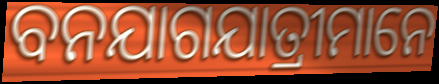
ବନଯାଗଯାତ୍ରୀମାନେ